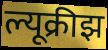
ल्यूक्रीझ